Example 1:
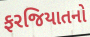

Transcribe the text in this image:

ફરજિયાતનો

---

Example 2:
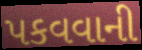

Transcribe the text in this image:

પકવવાની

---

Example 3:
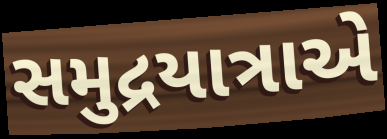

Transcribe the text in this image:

સમુદ્રયાત્રાએ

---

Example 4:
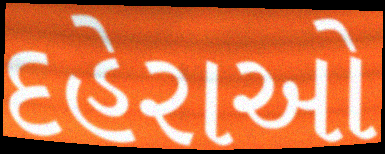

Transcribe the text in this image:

દહેરાઓ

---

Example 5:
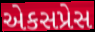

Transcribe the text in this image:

એકસપ્રેસ